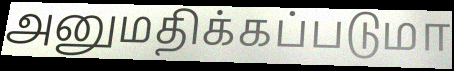
அனுமதிக்கப்படுமா